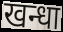
खन्धा